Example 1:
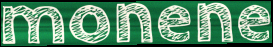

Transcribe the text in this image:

monene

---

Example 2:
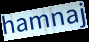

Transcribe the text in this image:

hamnaj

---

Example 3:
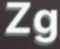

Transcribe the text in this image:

Zg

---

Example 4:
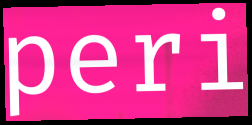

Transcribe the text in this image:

peri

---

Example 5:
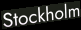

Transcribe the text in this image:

Stockholm